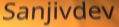
Sanjivdev